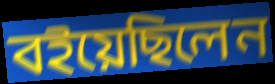
বইয়েছিলেন